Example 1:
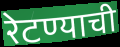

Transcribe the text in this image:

रेटण्याची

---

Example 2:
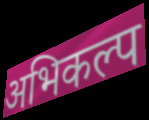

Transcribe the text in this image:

अभिकल्प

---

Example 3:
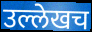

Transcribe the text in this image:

उल्लेखच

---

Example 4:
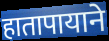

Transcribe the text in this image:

हातापायाने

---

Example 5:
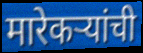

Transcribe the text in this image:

मारेकऱ्यांची